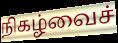
நிகழ்வைச்